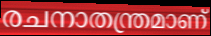
രചനാതന്ത്രമാണ്